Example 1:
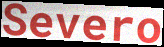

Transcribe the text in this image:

Severo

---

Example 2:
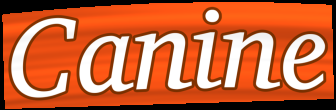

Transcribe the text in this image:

Canine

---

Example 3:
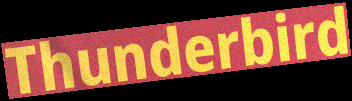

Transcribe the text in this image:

Thunderbird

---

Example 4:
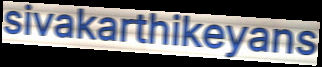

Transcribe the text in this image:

sivakarthikeyans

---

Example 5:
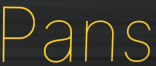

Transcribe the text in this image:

Pans